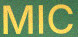
MIC